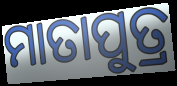
ମାତାପୁତ୍ର